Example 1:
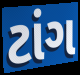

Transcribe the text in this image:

ટાંગ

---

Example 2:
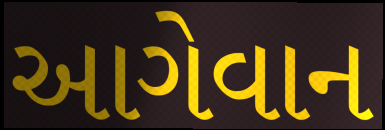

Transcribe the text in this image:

આગેવાન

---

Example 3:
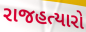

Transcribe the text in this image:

રાજહત્યારો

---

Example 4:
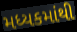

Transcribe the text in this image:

મધ્યકમાંથી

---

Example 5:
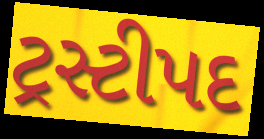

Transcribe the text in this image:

ટ્રસ્ટીપદ